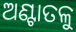
ଅଣ୍ଟାତଳୁ